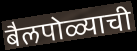
बैलपोळ्याची